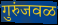
गुरुंजवळ